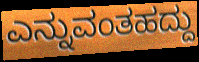
ಎನ್ನುವಂತಹದ್ದು